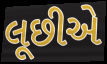
લૂછીએ